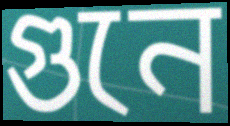
গুনে